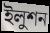
ইলুশন